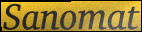
Sanomat